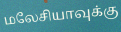
மலேசியாவுக்கு